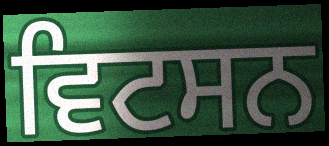
ਵਿਟਸਨ